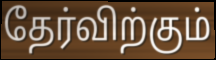
தேர்விற்கும்